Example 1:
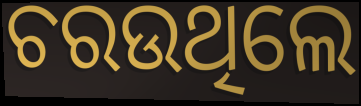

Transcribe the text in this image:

ଚରଉଥିଲେ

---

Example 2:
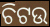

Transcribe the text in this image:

ଚିଟଉ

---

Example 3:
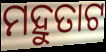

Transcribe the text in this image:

ମହୁତାଟ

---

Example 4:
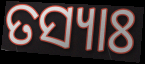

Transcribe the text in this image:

ତସ୍ୟାଃ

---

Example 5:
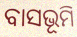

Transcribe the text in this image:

ବାସଭୂମି